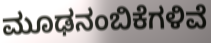
ಮೂಢನಂಬಿಕೆಗಳಿವೆ